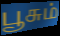
பூசும்